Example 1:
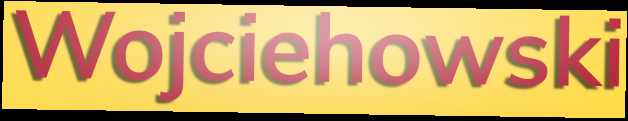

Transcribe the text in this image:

Wojciehowski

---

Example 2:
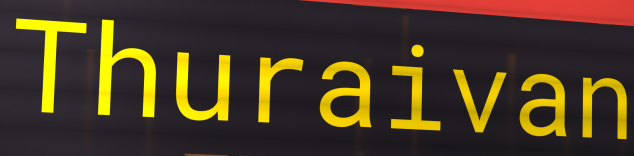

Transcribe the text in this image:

Thuraivan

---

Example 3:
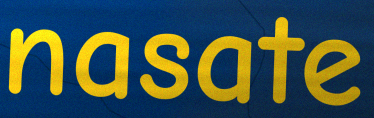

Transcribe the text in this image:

nasate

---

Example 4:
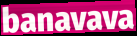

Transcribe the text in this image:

banavava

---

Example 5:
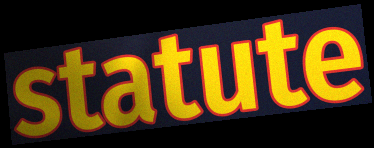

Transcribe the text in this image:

statute